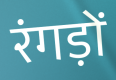
रंगड़ों